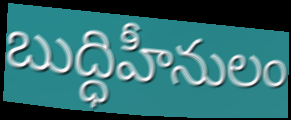
బుద్ధిహీనులం